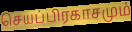
செயப்பிரகாசமும்